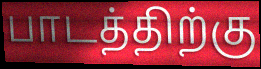
பாடத்திற்கு